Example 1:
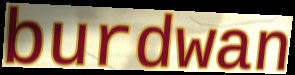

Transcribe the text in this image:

burdwan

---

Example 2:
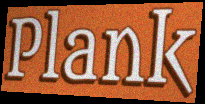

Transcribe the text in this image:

Plank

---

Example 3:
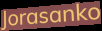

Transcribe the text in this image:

Jorasanko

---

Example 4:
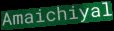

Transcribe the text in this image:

Amaichiyal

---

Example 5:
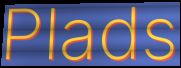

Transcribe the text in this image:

Plads